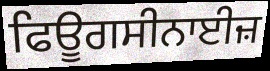
ਫਿਊਗਸੀਨਾਈਜ਼